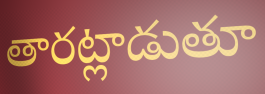
తారట్లాడుతూ